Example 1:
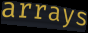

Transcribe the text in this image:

arrays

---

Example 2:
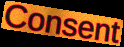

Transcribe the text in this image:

Consent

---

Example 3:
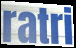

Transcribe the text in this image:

ratri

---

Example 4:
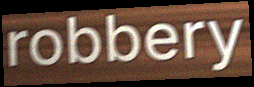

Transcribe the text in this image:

robbery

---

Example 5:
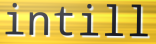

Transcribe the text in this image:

intill